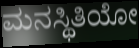
ಮನಸ್ಥಿತಿಯೋ